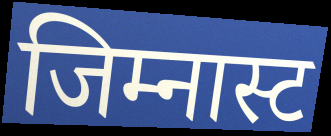
जिम्नास्ट